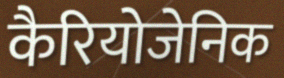
कैरियोजेनिक